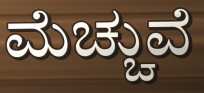
ಮೆಚ್ಚುವೆ